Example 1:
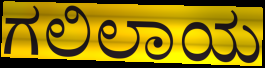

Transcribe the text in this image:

ಗಲಿಲಾಯ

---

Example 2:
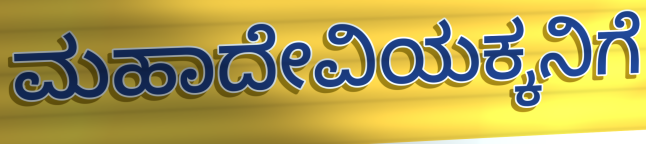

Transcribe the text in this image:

ಮಹಾದೇವಿಯಕ್ಕನಿಗೆ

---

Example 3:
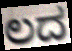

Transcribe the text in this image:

ಲದ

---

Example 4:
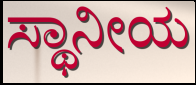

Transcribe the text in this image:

ಸ್ಥಾನೀಯ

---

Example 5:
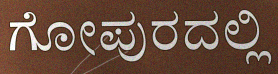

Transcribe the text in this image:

ಗೋಪುರದಲ್ಲಿ